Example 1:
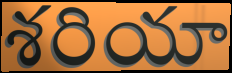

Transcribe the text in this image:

శరియా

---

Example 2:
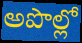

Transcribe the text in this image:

అపొల్లో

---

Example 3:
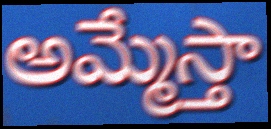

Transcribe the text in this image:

అమ్మేస్తా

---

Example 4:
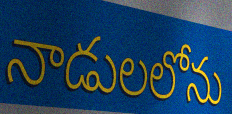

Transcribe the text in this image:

నాడులలోను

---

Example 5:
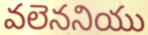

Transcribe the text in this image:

వలెననియు